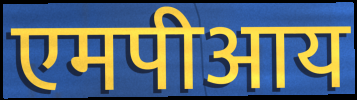
एमपीआय